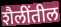
शैलींतील